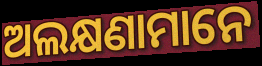
ଅଲକ୍ଷଣାମାନେ